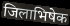
जिलाभिषेक